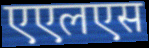
एएलएस